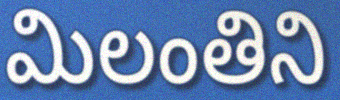
మిలంతిని